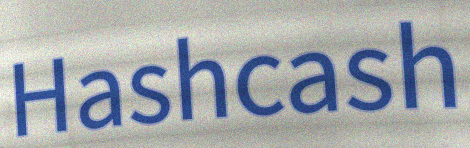
Hashcash